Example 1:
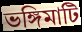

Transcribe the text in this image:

ভঙ্গিমাটি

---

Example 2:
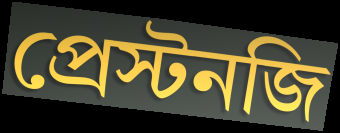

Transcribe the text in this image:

প্রেস্টনজি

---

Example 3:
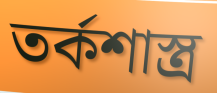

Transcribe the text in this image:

তর্কশাস্ত্র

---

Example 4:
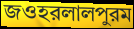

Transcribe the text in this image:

জওহরলালপুরম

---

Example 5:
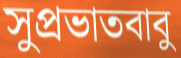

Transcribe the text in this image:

সুপ্রভাতবাবু